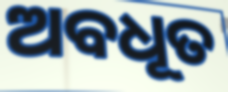
ଅବଧୂତ